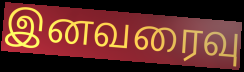
இனவரைவு